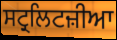
ਸਟ੍ਰਲਿਟਜ਼ੀਆ